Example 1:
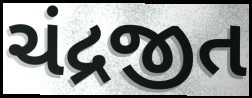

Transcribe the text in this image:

ચંદ્રજીત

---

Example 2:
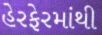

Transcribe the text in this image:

હેરફેરમાંથી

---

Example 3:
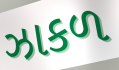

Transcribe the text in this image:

ઝાકળ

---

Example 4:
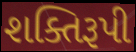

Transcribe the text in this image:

શક્તિરૂપી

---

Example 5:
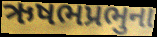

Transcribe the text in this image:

ઋષભપ્રભુના